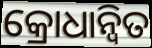
କ୍ରୋଧାନ୍ୱିତ